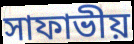
সাফাভীয়